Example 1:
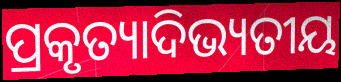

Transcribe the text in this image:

ପ୍ରକୃତ୍ୟାଦିଭ୍ୟତୀୟ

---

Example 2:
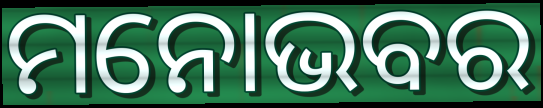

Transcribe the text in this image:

ମନୋଭବର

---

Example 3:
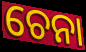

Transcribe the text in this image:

ଚେନା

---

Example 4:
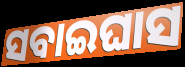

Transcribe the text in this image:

ସବାଇଘାସ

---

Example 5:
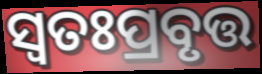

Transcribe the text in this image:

ସ୍ୱତଃପ୍ରବୃତ୍ତ